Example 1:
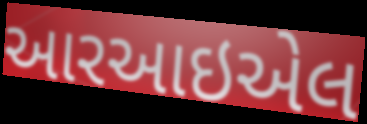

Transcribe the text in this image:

આરઆઇએલ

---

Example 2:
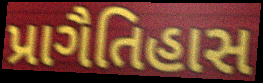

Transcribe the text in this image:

પ્રાગૈતિહાસ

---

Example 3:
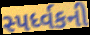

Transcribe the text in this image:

સ્પર્ધ્વકની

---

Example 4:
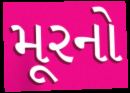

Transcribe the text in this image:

મૂરનો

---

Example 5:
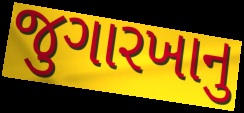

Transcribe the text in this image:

જુગારખાનુ